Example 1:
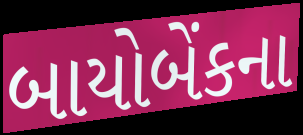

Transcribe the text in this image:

બાયોબેંકના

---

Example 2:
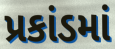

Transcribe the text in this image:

પ્રકાંડમાં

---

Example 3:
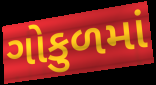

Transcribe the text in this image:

ગોકુળમાં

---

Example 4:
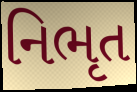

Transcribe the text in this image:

નિભૃત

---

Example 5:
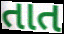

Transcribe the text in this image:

તાત